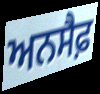
ਅਨਸੈਫ਼